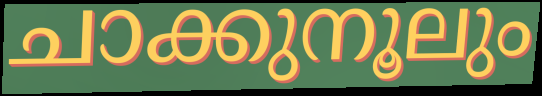
ചാക്കുനൂലും